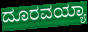
ದೂರವಯ್ಯಾ